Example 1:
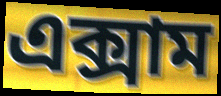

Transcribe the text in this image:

এক্সাম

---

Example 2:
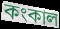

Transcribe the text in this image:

কংকাল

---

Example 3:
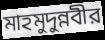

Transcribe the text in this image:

মাহমুদুন্নবীর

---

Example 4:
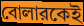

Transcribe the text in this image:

বোলারকেই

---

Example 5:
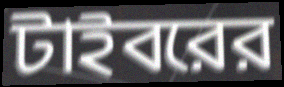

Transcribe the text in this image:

টাইবরের